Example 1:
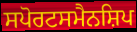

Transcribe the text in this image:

ਸਪੋਰਟਸਮੈਨਸ਼ਿਪ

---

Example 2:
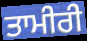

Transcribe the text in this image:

ਤਾਮੀਰੀ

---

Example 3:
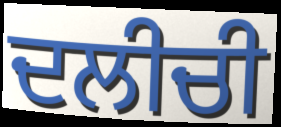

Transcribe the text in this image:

ਦਲੀਚੀ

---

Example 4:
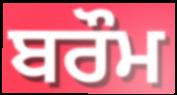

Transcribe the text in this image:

ਬਰੌਮ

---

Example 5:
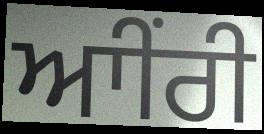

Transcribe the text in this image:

ਆੀਂਰੀ